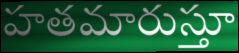
హతమారుస్తూ